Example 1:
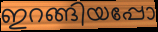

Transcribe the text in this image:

ഇറങ്ങിയപ്പോ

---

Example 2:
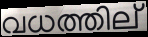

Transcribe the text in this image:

വധത്തില്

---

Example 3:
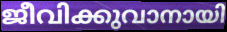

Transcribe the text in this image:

ജീവിക്കുവാനായി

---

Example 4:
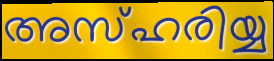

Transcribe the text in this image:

അസ്ഹരിയ്യ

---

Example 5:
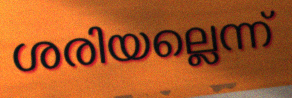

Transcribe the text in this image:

ശരിയല്ലെന്ന്